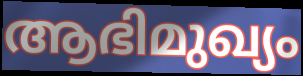
ആഭിമുഖ്യം